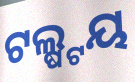
ଟଲ୍ଷ୍ଟୟ